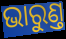
ଭାରୁଣ୍ତ